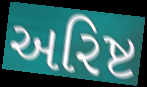
અરિષ્ટ